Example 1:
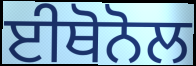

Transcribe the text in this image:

ਈਥੋਨੋਲ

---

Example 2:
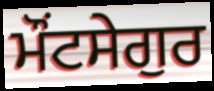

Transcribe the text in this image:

ਮੌਂਟਸੇਗੁਰ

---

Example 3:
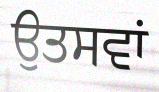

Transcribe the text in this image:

ਉਤਸਵਾਂ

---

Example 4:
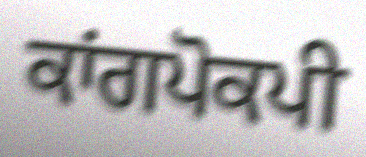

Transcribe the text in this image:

ਕਾਂਗਪੋਕਪੀ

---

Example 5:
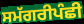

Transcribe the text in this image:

ਸਮੱਗਰੀਪੰਛੀ